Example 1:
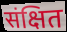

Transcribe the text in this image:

संक्षित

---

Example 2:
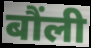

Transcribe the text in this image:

बौंली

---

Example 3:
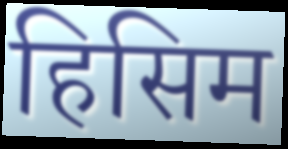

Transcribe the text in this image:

हिसिम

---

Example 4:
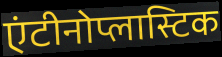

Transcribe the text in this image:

एंटीनोप्लास्टिक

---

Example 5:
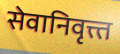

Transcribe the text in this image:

सेवानिवृत्त्त